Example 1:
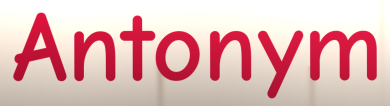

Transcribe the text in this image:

Antonym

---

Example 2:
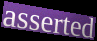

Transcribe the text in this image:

asserted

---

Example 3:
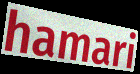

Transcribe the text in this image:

hamari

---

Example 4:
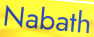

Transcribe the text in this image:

Nabath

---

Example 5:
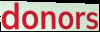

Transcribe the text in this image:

donors